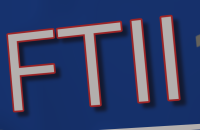
FTII